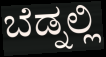
ಬೆಡ್ನಲ್ಲಿ